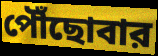
পৌঁছোবার